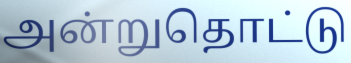
அன்றுதொட்டு